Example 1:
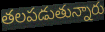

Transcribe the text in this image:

తలపడుతున్నారు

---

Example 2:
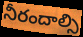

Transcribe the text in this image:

నీరందాల్సి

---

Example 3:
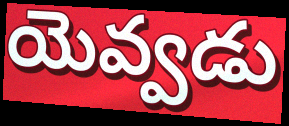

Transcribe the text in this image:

యెవ్వడు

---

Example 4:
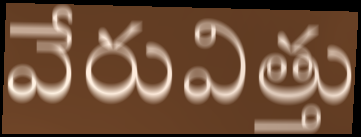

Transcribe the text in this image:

వేరువిత్తు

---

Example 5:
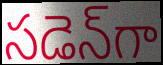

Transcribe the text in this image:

సడెన్‌గా